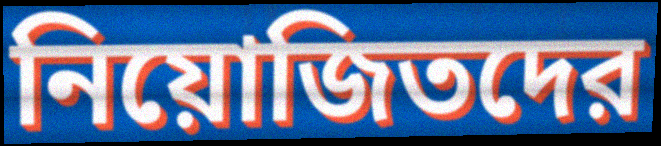
নিয়োজিতদের